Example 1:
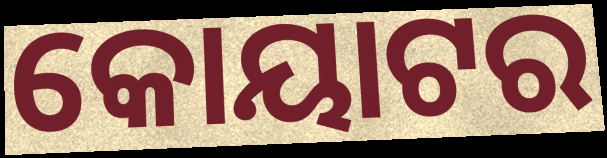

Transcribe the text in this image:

କୋୟାଟର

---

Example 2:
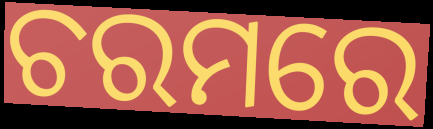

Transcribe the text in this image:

ଚରମରେ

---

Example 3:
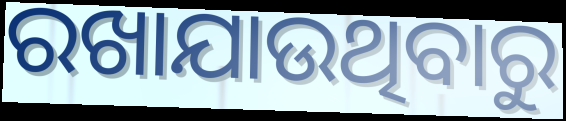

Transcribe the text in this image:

ରଖାଯାଉଥିବାରୁ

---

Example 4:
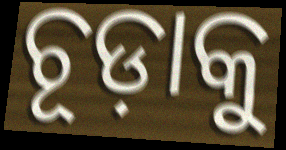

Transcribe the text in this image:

ଚୂଡ଼ାକୁ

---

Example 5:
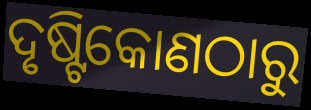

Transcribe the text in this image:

ଦୃଷ୍ଟିକୋଣଠାରୁ